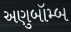
અણુબૉમ્બ